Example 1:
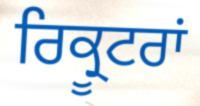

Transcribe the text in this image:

ਰਿਕ੍ਰੂਟਰਾਂ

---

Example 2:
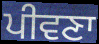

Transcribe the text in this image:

ਪੀਵਣਾ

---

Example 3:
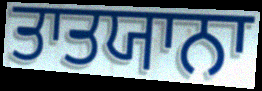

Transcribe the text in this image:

ਤਾਤਯਾਨਾ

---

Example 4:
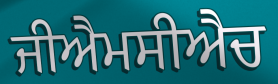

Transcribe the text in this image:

ਜੀਐਮਸੀਐਚ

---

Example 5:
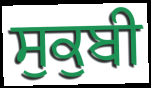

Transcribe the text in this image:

ਸੁਕੁਬੀ